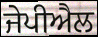
ਜੇਪੀਐਲ